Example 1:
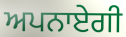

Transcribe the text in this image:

ਅਪਨਾਏਗੀ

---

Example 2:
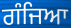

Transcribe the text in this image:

ਗੰਜਿਆ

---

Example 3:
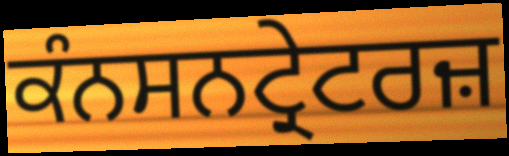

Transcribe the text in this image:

ਕੰਨਸਨਟ੍ਰੇਟਰਜ਼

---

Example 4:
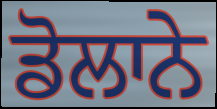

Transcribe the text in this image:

ਡੋਲਾਨੇ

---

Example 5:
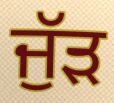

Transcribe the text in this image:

ਜੁੱੜ